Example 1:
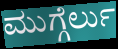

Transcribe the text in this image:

ಮುಗ್ಗೆರ್ಲು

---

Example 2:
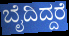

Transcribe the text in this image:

ಬೈದಿದ್ದರೆ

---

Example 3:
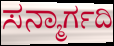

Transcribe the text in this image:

ಸನ್ಮಾರ್ಗದಿ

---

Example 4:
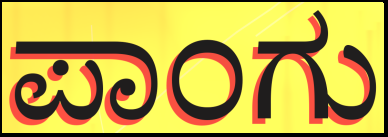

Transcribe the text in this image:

ಪಾಂಗು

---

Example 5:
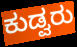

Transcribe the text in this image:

ಕುಡ್ವರು